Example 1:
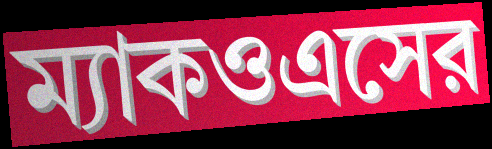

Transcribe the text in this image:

ম্যাকওএসের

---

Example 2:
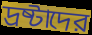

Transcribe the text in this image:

দ্রষ্টাদের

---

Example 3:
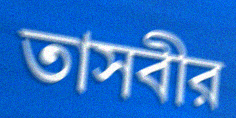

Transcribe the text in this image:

তাসবীর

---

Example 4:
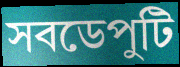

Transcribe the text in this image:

সবডেপুটি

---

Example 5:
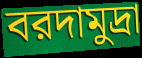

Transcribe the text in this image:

বরদামুদ্রা